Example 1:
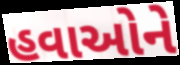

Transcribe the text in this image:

હવાઓને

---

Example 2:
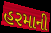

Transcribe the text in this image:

હરમાની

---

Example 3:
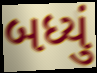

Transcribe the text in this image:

બધ્યું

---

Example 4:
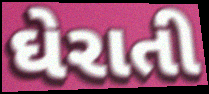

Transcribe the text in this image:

ઘેરાતી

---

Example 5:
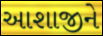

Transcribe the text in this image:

આશાજીને